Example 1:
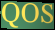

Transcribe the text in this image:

QOS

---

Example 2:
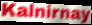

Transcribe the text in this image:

Kalnirnay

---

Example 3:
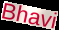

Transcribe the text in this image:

Bhavi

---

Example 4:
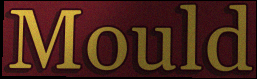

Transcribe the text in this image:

Mould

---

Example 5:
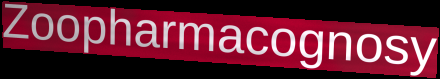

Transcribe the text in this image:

Zoopharmacognosy